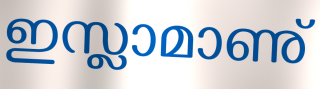
ഇസ്ലാമാണു്